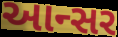
આન્સર